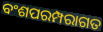
ବଂଶପରମ୍ପରାଗତ